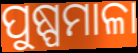
ପୁଷ୍ପମାଳା